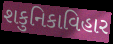
શકુનિકાવિહાર